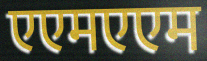
एएमएएम